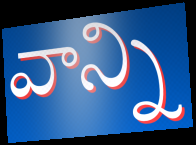
వాన్ని